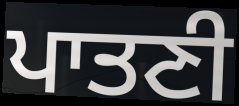
ਪਾਤਣੀ